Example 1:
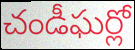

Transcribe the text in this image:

చండీఘర్లో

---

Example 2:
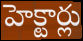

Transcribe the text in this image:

హెక్టార్లు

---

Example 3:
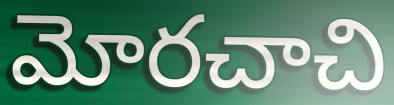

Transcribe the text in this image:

మోరచాచి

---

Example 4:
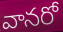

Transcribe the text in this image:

వానరో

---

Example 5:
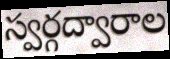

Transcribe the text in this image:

స్వర్గద్వారాల